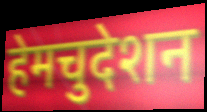
हेमचुदेशन